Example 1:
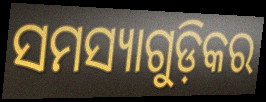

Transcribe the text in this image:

ସମସ୍ୟାଗୁଡ଼ିକର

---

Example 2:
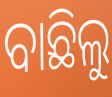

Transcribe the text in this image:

ବାଛିଲୁ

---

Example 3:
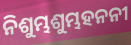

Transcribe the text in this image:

ନିଶୁମ୍ଭଶୁମ୍ଭହନନୀ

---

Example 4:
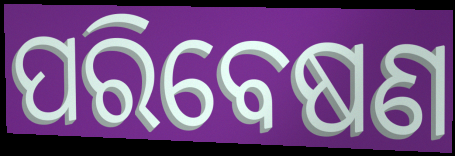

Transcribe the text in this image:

ପରିବେଷଣ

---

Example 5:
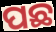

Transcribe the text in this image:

ପଛ